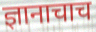
ज्ञानाचाच